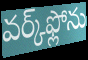
వర్క్‌ఫ్లోను